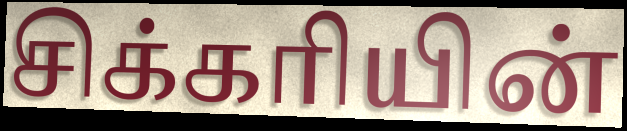
சிக்கரியின்